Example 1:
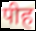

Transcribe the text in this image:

पीह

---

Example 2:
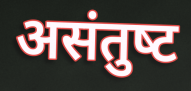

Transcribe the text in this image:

असंतुष्‍ट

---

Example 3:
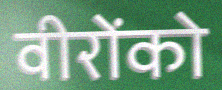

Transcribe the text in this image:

वीरोंको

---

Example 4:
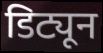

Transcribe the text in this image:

डिट्यून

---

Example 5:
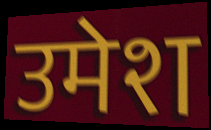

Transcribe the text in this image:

उमेश